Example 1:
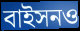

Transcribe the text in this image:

বাইসনও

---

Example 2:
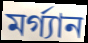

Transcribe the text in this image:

মর্গ্যান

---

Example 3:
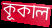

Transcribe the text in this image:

কূকাল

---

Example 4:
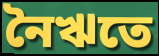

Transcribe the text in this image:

নৈঋতে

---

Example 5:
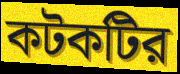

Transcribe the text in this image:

কটকটির